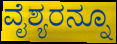
ವೈಶ್ಯರನ್ನೂ